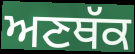
ਅਣਥੱਕ